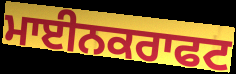
ਮਾਈਨਕਰਾਫਟ